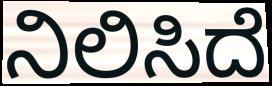
ನಿಲಿಸಿದೆ